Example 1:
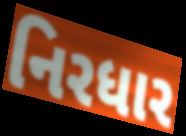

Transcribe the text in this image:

નિરધાર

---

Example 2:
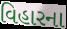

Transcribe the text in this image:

વિહારના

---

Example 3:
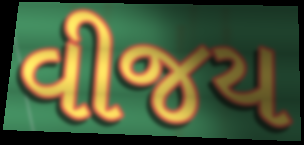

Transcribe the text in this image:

વીજય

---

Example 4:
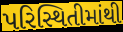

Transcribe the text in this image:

પરિસ્થિતીમાંથી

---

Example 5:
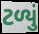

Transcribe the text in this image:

ટળ્યું